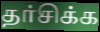
தர்சிக்க